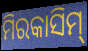
ମିରକାସିମ୍